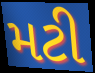
મટી